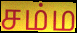
சம்ம